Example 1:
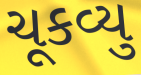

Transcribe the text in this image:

ચૂકવ્યુ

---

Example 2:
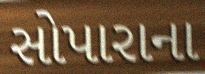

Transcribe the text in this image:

સોપારાના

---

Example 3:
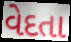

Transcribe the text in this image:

વેદતા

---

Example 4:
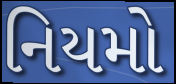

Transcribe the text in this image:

નિયમો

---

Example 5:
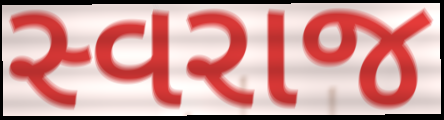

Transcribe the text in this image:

સ્વરાજ